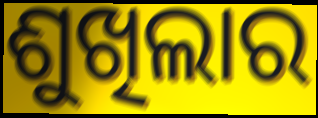
ଶୁଖିଲାର